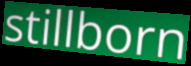
stillborn